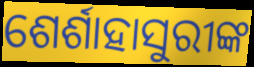
ଶେର୍ଶାହାସୁରୀଙ୍କ